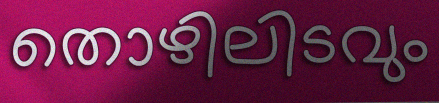
തൊഴിലിടവും